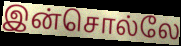
இன்சொல்லே